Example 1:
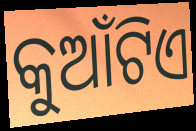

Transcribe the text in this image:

କୁଆଁଟିଏ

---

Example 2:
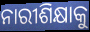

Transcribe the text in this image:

ନାରୀଶିକ୍ଷାକୁ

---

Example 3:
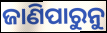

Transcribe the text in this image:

ଜାଣିପାରୁନୁ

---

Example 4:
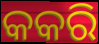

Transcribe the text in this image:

କକରି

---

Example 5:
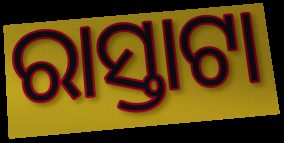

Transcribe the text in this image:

ରାସ୍ତାଟା